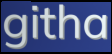
githa